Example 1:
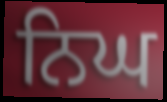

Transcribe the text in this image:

ਨਿਘ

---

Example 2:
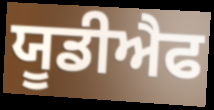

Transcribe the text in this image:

ਯੂਡੀਐਫ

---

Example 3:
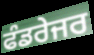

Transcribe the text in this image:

ਫੰਡਰੇਜਰ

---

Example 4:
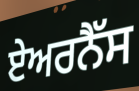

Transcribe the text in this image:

ਏਅਰਨੈੱਸ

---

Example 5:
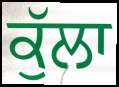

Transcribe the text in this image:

ਕੁੱਲਾ